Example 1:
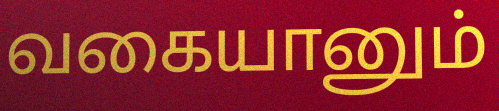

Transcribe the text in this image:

வகையானும்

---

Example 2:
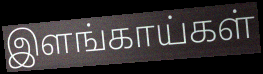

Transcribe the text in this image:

இளங்காய்கள்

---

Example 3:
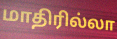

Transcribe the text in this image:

மாதிரில்லா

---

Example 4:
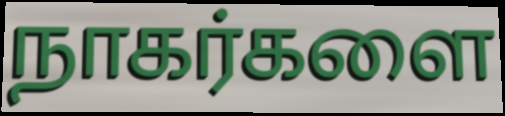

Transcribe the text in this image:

நாகர்களை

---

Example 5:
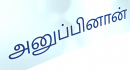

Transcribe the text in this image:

அனுப்பினான்